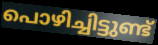
പൊഴിച്ചിട്ടുണ്ട്